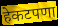
हेकटपणा